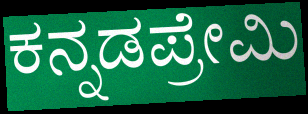
ಕನ್ನಡಪ್ರೇಮಿ